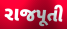
રાજપૂતી